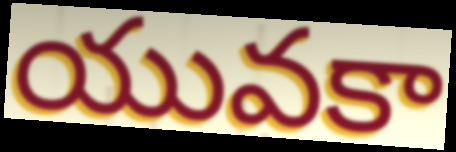
యువకా